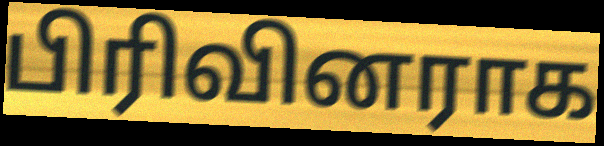
பிரிவினராக